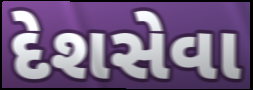
દેશસેવા